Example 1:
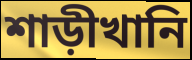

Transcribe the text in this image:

শাড়ীখানি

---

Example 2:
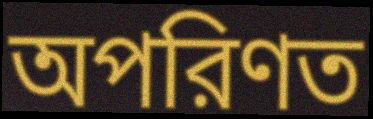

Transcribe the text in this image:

অপরিণত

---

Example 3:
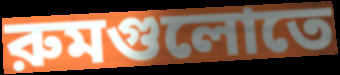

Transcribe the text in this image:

রুমগুলোতে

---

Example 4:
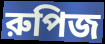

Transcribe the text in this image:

রুপিজ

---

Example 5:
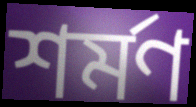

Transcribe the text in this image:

শর্মণ